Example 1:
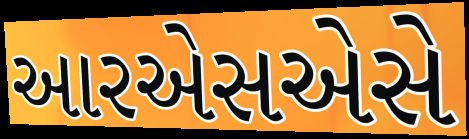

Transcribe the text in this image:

આરએસએસે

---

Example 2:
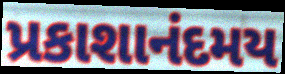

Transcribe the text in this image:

પ્રકાશાનંદમય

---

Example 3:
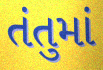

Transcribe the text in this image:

તંતુમાં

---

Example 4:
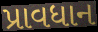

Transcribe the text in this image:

પ્રાવધાન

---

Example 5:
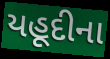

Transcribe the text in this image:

યહૂદીના